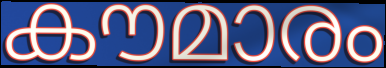
കൗമാരം